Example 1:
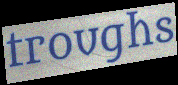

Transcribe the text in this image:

troughs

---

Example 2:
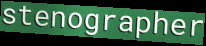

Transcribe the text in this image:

stenographer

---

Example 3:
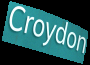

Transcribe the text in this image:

Croydon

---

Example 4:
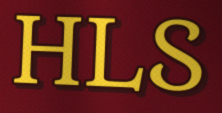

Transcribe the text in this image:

HLS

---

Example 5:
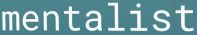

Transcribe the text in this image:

mentalist